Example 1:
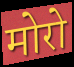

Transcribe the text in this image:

मोरो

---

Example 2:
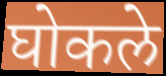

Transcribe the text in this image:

घोकले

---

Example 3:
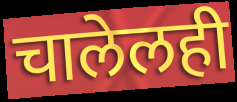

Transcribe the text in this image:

चालेलही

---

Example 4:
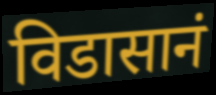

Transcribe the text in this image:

विडासानं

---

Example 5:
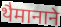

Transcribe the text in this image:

थैमानाने